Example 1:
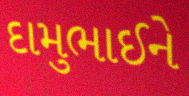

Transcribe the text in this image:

દામુભાઈને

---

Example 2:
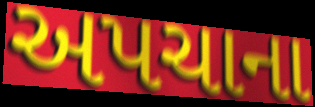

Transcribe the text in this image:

અપચાના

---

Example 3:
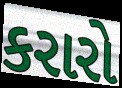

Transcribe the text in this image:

કરારો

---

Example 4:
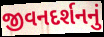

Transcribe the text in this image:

જીવનદર્શનનું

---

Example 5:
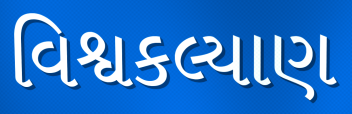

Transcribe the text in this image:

વિશ્વકલ્યાણ